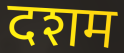
दशम